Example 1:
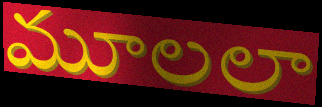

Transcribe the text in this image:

మూలలా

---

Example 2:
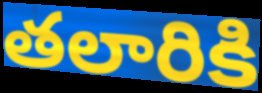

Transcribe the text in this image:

తలారికి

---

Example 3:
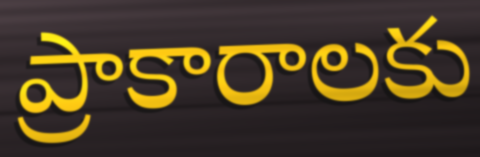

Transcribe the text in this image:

ప్రాకారాలకు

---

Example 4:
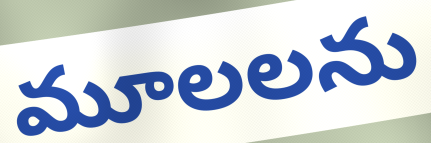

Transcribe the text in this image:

మూలలను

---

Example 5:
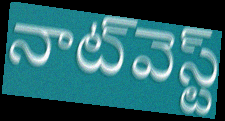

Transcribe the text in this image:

నాట్‌వెస్ట్